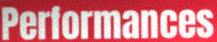
Performances